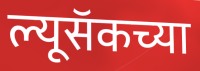
ल्यूसॅकच्या